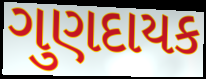
ગુણદાયક